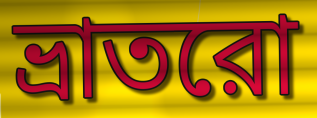
ভ্রাতরো